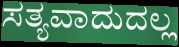
ಸತ್ಯವಾದುದಲ್ಲ